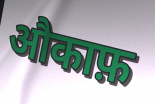
औकाफ़